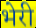
भेरी